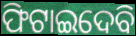
ଫିଟାଇଦେବି